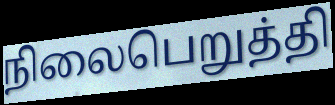
நிலைபெறுத்தி